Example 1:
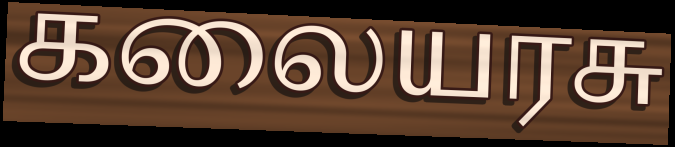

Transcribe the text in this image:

கலையரசு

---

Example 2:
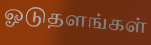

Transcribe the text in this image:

ஓடுதளங்கள்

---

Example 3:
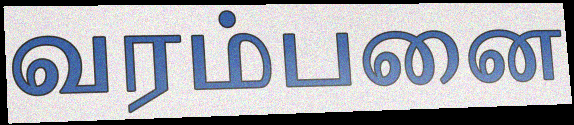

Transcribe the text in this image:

வரம்பனை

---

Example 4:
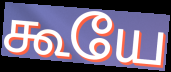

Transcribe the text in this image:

கூயே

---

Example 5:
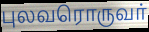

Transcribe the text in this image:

புலவரொருவர்